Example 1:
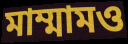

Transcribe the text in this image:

মাম্মামও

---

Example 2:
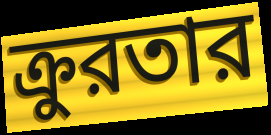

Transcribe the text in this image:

ক্রুরতার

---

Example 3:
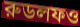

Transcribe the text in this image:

রুডলফও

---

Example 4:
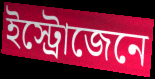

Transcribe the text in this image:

ইস্ট্রোজেনে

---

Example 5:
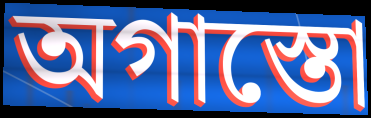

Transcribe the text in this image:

অগাস্তো